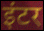
इंटर